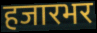
हजारभर